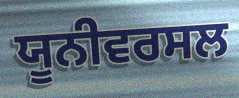
ਯੂਨੀਵਰਸਲ